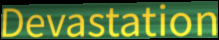
Devastation